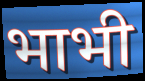
भाभी